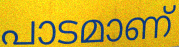
പാടമാണ്